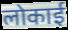
लोकाई